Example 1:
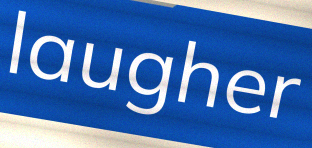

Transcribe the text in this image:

laugher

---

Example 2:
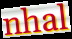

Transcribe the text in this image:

nhal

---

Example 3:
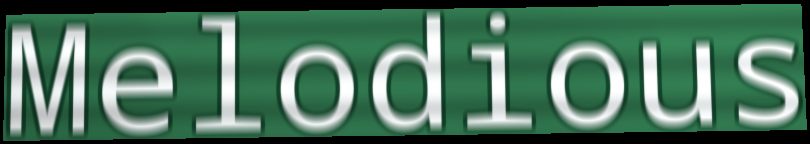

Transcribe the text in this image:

Melodious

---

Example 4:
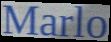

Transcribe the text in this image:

Marlo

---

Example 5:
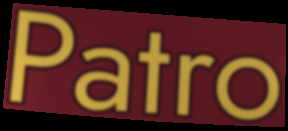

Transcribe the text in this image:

Patro